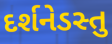
દર્શનેડસ્તુ